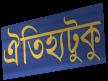
ঐতিহ্যটুকু